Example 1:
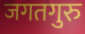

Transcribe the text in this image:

जगतगुरु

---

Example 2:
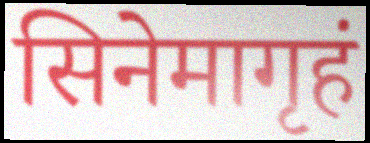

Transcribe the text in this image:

सिनेमागृहं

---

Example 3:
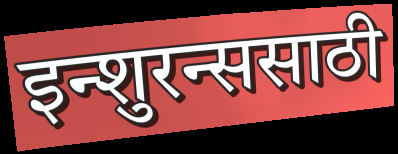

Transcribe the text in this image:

इन्शुरन्ससाठी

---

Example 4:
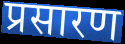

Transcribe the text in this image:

प्रसारण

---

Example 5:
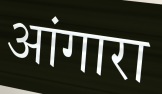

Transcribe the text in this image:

आंगारा